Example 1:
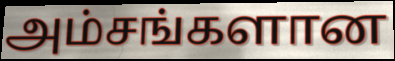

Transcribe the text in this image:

அம்சங்களான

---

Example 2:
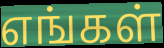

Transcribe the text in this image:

எங்கள்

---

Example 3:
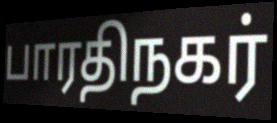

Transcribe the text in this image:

பாரதிநகர்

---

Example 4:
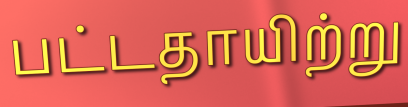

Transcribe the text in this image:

பட்டதாயிற்று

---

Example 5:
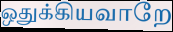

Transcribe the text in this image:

ஒதுக்கியவாறே